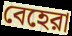
বেহেরা